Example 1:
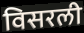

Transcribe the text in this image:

विसरली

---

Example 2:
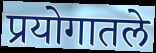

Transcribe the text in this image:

प्रयोगातले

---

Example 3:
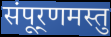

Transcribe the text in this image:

संपूर्णमस्तु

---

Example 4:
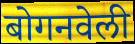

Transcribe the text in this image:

बोगनवेली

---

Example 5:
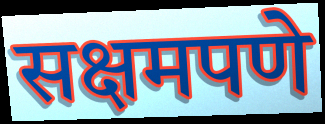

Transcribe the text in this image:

सक्षमपणे